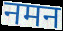
नमन